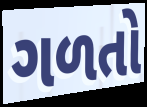
ગળતો